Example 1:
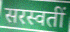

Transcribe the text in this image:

सरस्वतीं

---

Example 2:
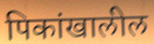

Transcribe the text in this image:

पिकांखालील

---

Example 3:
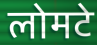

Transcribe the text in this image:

लोमटे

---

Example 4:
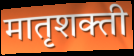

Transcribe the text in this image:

मातृशक्ती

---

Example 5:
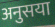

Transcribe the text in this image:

अनुसया